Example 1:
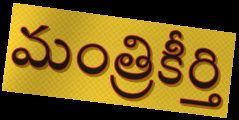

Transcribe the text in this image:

మంత్రికీర్తి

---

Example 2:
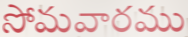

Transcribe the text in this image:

సోమవారము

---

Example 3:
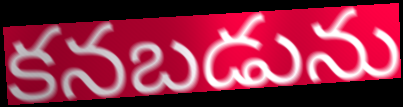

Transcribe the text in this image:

కనబడును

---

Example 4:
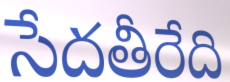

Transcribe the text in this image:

సేదతీరేది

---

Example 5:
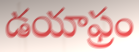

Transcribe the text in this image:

డయాఫ్రం